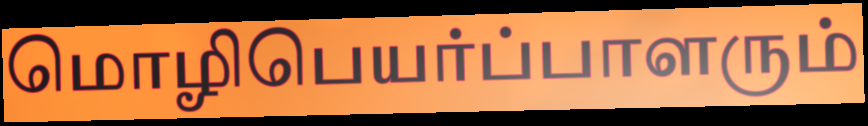
மொழிபெயர்ப்பாளரும்